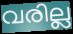
വരില്ല